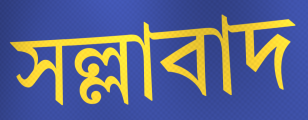
সল্লাবাদ